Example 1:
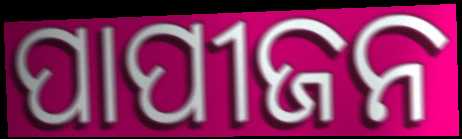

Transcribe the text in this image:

ପାପୀଜନ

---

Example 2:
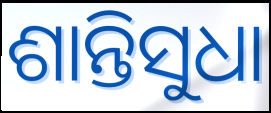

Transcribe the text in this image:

ଶାନ୍ତିସୁଧା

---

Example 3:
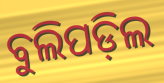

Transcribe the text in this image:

ବୁଲିପଡ଼ିଲ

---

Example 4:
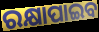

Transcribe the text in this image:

ରକ୍ଷାପାଇବ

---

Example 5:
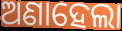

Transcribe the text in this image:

ଅଣାହେଲା